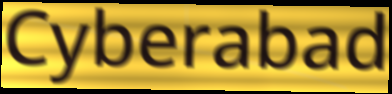
Cyberabad